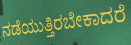
ನಡೆಯುತ್ತಿರಬೇಕಾದರೆ